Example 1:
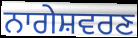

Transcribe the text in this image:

ਨਾਗੇਸ਼ਵਰਣ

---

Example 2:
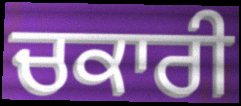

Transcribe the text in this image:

ਚਕਾਰੀ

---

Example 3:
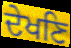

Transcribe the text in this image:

ਦੇਖਣਿ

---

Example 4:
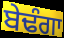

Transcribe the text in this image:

ਬੇਢੰਗਾ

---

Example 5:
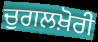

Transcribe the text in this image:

ਚੁਗਲਖ਼ੋਰੀ